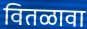
वितळावा